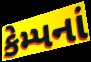
કેમ્પનાં